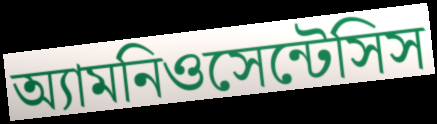
অ্যামনিওসেন্টেসিস